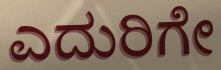
ಎದುರಿಗೇ